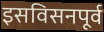
इसविसनपूर्व